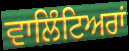
ਵਾਲਿੰਟਿਅਰਾਂ